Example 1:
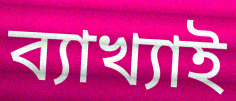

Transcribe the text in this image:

ব্যাখ্যাই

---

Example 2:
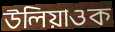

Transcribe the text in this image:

উলিয়াওক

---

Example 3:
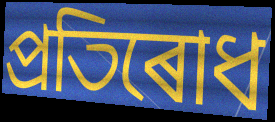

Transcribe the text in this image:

প্ৰতিৰোধ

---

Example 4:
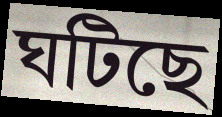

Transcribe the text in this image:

ঘটিছে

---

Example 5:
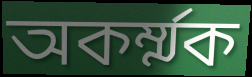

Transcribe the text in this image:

অকৰ্ম্মক